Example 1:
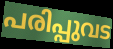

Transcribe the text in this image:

പരിപ്പുവട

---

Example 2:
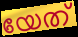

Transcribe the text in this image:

യേത്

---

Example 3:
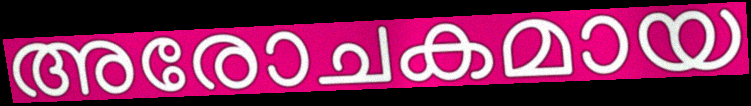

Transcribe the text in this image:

അരോചകമായ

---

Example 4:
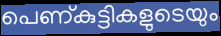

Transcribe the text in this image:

പെണ്കുട്ടികളുടെയും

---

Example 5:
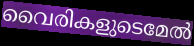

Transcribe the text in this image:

വൈരികളുടെമേൽ